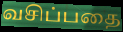
வசிப்பதை